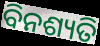
ବିନଶ୍ୟତି